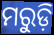
ମରୁଡ଼ି